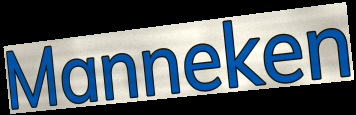
Manneken